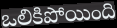
ఒలికిపోయింది